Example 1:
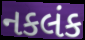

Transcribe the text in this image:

નકલંક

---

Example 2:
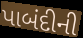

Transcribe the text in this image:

પાબંદીની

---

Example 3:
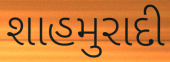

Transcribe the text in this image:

શાહમુરાદી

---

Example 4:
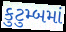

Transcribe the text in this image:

કુટુમ્બમાં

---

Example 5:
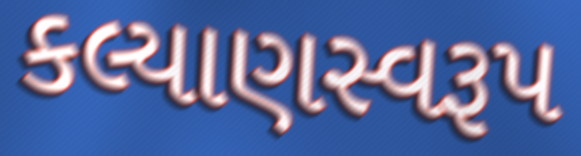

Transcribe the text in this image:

કલ્યાણસ્વરૂપ